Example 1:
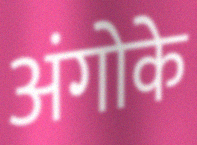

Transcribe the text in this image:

अंगोके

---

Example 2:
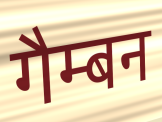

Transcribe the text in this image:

गैम्बन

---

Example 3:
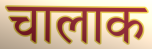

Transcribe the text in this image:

चालाक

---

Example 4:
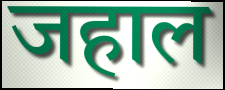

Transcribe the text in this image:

जहाल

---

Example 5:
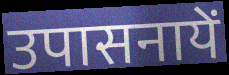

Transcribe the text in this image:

उपासनायें